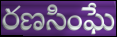
రణసింఘే